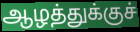
ஆழத்துக்குச்